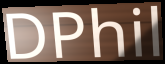
DPhil